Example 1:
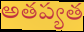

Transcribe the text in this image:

అతప్యత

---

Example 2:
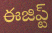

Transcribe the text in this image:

ఈజిప్ట్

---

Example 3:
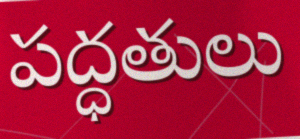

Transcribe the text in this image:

పద్ధతులు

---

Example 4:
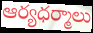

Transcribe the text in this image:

ఆర్యధర్మాలు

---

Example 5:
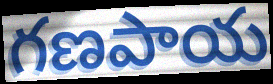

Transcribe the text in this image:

గణపాయ